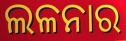
ଲଳନାର